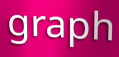
graph